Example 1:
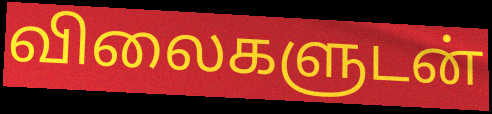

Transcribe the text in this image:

விலைகளுடன்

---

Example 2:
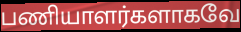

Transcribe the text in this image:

பணியாளர்களாகவே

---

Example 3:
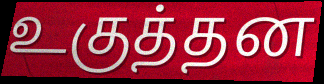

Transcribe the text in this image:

உகுத்தன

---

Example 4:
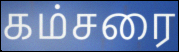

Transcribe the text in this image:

கம்சரை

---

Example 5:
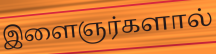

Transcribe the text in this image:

இளைஞர்களால்